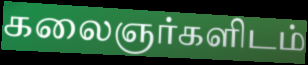
கலைஞர்களிடம்